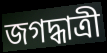
জগদ্ধাত্রী